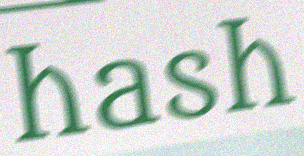
hash